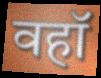
वहॉ